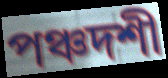
পঞ্চদশী